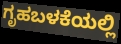
ಗೃಹಬಳಕೆಯಲ್ಲಿ